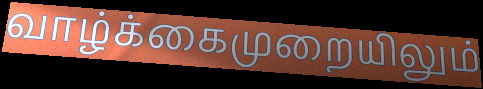
வாழ்க்கைமுறையிலும்